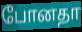
போனதா